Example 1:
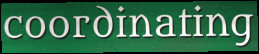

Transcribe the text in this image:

coordinating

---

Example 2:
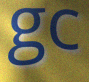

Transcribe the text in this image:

gc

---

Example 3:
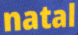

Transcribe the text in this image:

natal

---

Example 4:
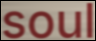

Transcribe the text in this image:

soul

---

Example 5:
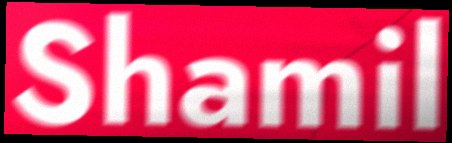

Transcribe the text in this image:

Shamil